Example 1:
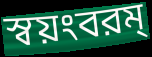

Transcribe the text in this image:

স্বয়ংবরম্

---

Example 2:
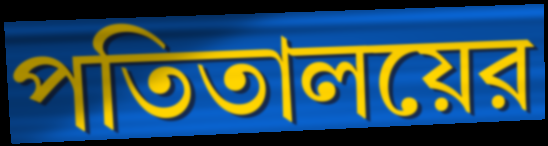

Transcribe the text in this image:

পতিতালয়ের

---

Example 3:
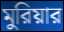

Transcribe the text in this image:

মুরিয়ার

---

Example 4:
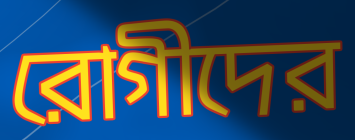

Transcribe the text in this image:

রোগীদের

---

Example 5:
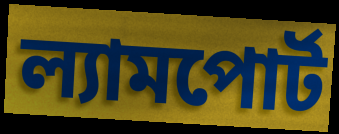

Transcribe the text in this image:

ল্যামপোর্ট